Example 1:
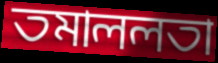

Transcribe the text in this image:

তমাললতা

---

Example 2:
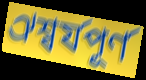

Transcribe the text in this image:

ঐশ্বর্যপূর্ণ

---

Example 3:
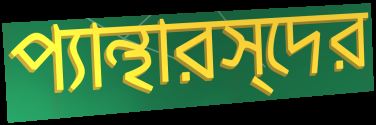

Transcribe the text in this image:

প্যান্থারস্‌দের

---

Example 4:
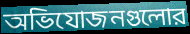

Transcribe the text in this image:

অভিযোজনগুলোর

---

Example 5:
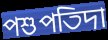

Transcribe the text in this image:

পশুপতিদা